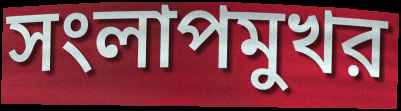
সংলাপমুখর